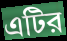
এটির